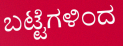
ಬಟ್ಟೆಗಳಿಂದ